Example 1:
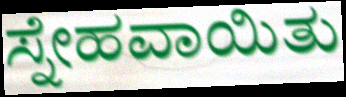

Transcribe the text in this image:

ಸ್ನೇಹವಾಯಿತು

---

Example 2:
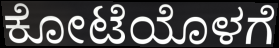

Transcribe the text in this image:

ಕೋಟೆಯೊಳಗೆ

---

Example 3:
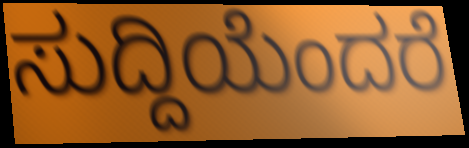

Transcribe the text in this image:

ಸುದ್ದಿಯೆಂದರೆ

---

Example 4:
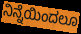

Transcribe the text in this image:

ನಿನ್ನೆಯಿಂದಲೂ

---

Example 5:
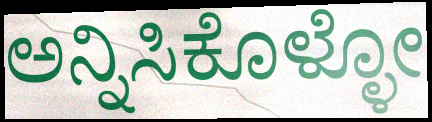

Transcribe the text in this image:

ಅನ್ನಿಸಿಕೊಳ್ಳೋ